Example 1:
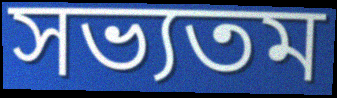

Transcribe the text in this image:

সভ্যতম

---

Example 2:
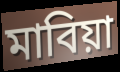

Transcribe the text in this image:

মাবিয়া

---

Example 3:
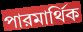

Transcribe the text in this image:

পারমার্থিক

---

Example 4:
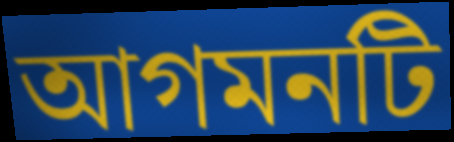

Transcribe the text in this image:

আগমনটি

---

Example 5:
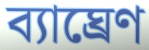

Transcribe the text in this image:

ব্যাঘ্রেণ